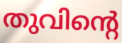
തുവിന്റെ